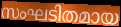
സംഘടിതമായ